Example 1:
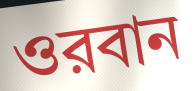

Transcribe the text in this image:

ওরবান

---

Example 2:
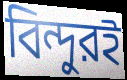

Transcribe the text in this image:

বিন্দুরই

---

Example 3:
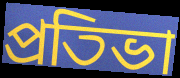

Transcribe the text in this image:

প্রতিভা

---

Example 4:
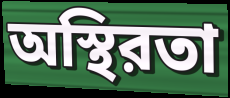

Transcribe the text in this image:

অস্থিরতা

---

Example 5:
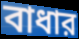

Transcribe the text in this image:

বাধার